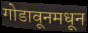
गोडावूनमधून